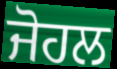
ਜੋਹਲ